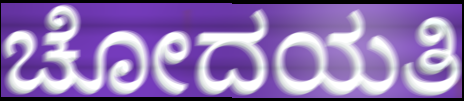
ಚೋದಯತಿ